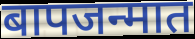
बापजन्मात